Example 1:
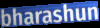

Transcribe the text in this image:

bharashun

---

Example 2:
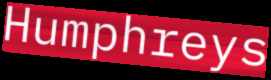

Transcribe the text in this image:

Humphreys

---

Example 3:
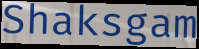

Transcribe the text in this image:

Shaksgam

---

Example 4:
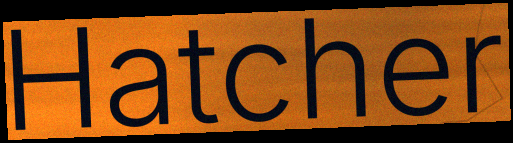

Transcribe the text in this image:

Hatcher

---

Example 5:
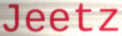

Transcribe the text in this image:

Jeetz